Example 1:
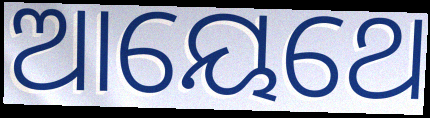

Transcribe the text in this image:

ଆୟେଥେ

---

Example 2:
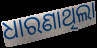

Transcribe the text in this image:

ଧାରଣାଥିଲା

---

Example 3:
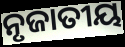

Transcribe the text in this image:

ନୃଜାତୀୟ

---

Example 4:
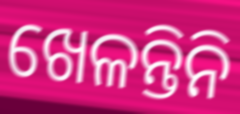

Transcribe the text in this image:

ଖେଳନ୍ତିନି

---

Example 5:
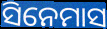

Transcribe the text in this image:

ସିନେମାସ